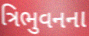
ત્રિભુવનના